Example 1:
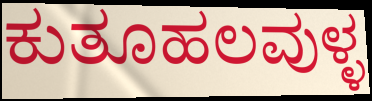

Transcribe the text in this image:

ಕುತೂಹಲವುಳ್ಳ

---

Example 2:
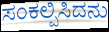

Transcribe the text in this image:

ಸಂಕಲ್ಪಿಸಿದನು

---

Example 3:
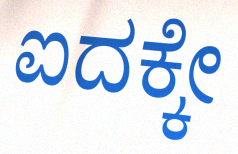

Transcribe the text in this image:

ಐದಕ್ಕೇ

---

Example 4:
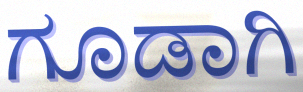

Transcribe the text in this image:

ಗೂಡಾಗಿ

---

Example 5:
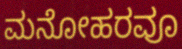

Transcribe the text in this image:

ಮನೋಹರವೂ